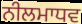
ਨੀਲਮਾਧਵ